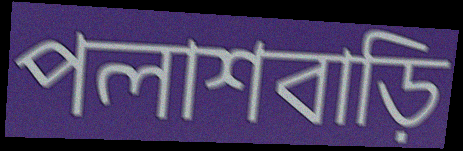
পলাশবাড়ি